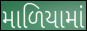
માળિયામાં